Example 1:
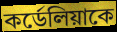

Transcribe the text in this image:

কর্ডেলিয়াকে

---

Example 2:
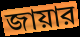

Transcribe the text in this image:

জায়ার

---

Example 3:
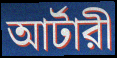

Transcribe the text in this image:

আর্টারী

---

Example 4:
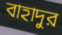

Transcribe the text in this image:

বাহাদুর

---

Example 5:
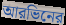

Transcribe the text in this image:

আরভিনের